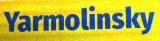
Yarmolinsky